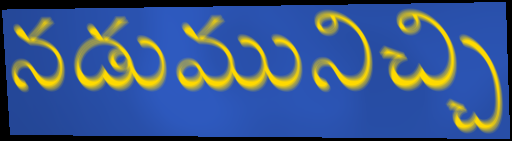
నడుమునిచ్చి